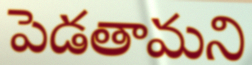
పెడతామని